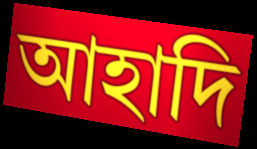
আহাদি